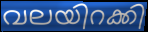
വലയിറക്കി